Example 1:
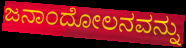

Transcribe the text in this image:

ಜನಾಂದೋಲನವನ್ನು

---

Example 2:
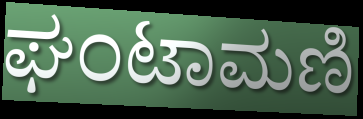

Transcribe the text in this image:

ಘಂಟಾಮಣಿ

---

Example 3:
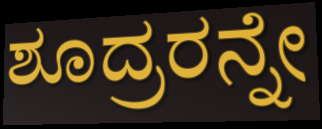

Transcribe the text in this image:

ಶೂದ್ರರನ್ನೇ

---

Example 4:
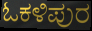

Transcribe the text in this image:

ಓಕಳಿಪುರ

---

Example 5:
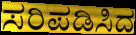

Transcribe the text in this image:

ಸರಿಪಡಿಸಿದ